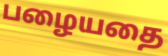
பழையதை